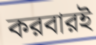
করবারই